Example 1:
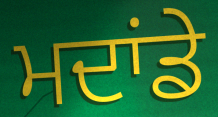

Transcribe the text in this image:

ਮਦਾਂਡੇ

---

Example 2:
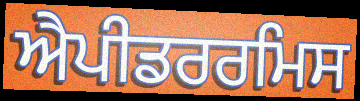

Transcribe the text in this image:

ਐਪੀਡਰਰਮਿਸ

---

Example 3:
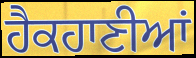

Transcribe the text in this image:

ਹੈਕਹਾਣੀਆਂ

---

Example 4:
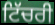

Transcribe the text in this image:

ਟਿੱਚਰੀ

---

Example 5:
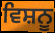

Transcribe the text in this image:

ਵਿਸ਼ਨੂ